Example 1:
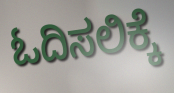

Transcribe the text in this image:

ಓದಿಸಲಿಕ್ಕೆ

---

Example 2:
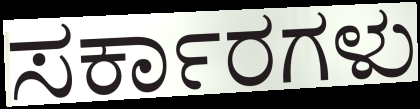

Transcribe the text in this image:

ಸರ್ಕಾರಗಳು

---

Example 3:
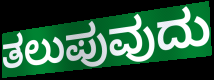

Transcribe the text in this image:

ತಲುಪುವುದು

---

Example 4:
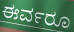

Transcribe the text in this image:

ಈರ್ವರೂ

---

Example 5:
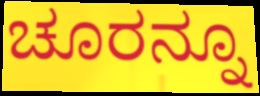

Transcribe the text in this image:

ಚೂರನ್ನೂ